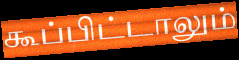
கூப்பிட்டாலும்